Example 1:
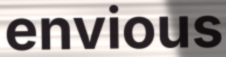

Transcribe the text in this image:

envious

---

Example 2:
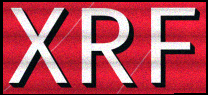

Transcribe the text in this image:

XRF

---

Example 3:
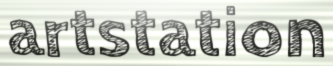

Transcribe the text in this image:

artstation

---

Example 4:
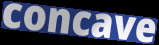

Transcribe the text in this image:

concave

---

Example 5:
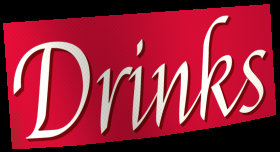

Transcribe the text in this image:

Drinks